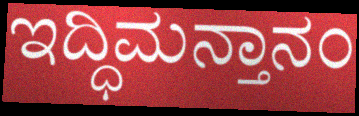
ಇದ್ಧಿಮನ್ತಾನಂ